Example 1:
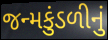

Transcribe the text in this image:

જન્મકુંડળીનું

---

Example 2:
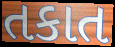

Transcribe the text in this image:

તકાત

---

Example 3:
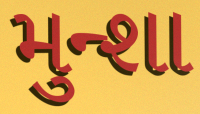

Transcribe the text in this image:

મુન્શા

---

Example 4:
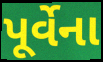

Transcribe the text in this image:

પૂર્વેના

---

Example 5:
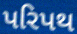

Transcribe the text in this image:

પરિપથ